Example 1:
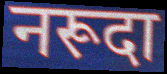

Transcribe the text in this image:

नरूदा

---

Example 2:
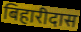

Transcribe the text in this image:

बिहारीदास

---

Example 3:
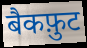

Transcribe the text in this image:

बैकफ़ुट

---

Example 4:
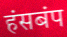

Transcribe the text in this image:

हंसबंप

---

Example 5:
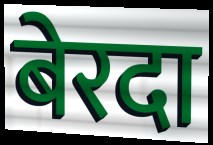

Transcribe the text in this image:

बेरदा